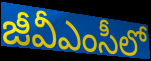
జీవీఎంసీలో